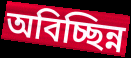
অবিচ্ছিন্ন